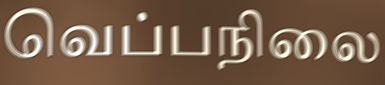
வெப்பநிலை